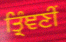
ਤ੍ਰਿੰਞਣੀਂ